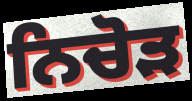
ਨਿਚੋੜ